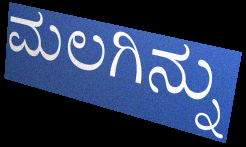
ಮಲಗಿನ್ನು